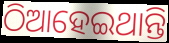
ଠିଆହେଇଥାନ୍ତି